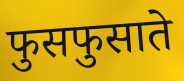
फुसफुसाते